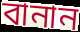
বানান